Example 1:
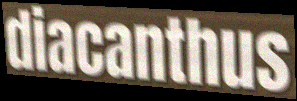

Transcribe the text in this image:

diacanthus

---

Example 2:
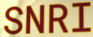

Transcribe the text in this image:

SNRI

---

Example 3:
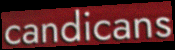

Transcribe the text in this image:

candicans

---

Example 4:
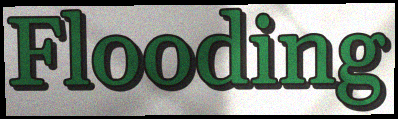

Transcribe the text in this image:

Flooding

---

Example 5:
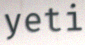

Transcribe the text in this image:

yeti